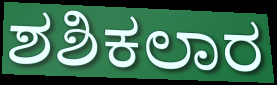
ಶಶಿಕಲಾರ